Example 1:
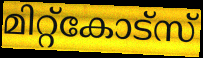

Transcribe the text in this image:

മിറ്റ്കോട്സ്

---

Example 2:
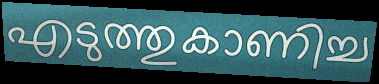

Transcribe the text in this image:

എടുത്തുകാണിച്ച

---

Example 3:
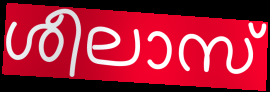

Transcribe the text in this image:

ശീലാസ്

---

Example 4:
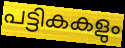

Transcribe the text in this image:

പട്ടികകളും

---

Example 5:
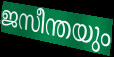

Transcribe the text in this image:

ജസീന്തയും